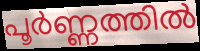
പൂർണ്ണത്തിൽ